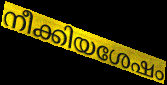
നീക്കിയശേഷം